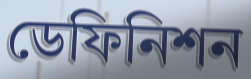
ডেফিনিশন